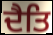
ਦੈਤਿ